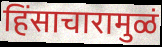
हिंसाचारामुळं